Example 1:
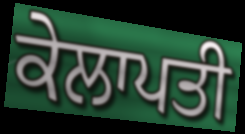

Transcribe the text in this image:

ਕੇਲਾਪਤੀ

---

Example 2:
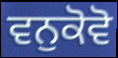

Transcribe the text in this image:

ਵਨੁਕੋਵੋ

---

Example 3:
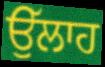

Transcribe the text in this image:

ਉੱਲਾਹ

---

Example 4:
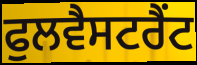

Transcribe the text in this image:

ਫੁਲਵੈਸਟਰੈਂਟ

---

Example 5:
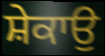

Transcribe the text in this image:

ਸ਼ੇਕਾਉ